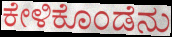
ಕೇಳಿಕೊಂಡೆನು